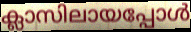
ക്ലാസിലായപ്പോൾ